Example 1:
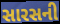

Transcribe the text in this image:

સારસની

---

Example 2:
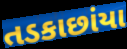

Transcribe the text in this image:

તડકાછાંયા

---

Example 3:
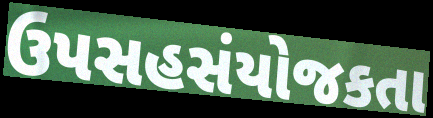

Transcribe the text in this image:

ઉપસહસંયોજકતા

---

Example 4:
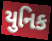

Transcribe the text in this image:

યુનિક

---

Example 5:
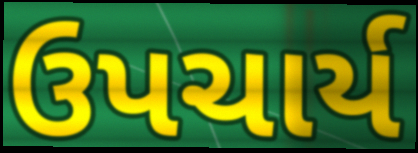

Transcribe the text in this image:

ઉપચાર્ય